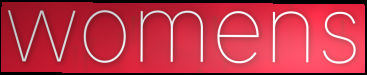
womens